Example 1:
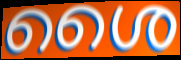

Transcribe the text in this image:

ശൈ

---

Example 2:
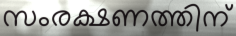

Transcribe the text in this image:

സംരക്ഷണത്തിന്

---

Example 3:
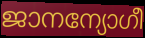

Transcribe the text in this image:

ജാനന്യോഗീ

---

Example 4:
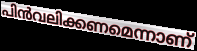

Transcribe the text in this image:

പിൻവലിക്കണമെന്നാണ്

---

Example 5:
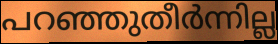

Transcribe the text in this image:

പറഞ്ഞുതീർന്നില്ല